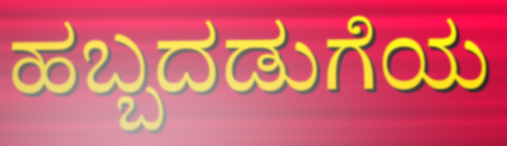
ಹಬ್ಬದಡುಗೆಯ